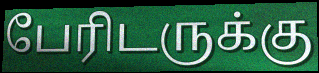
பேரிடருக்கு